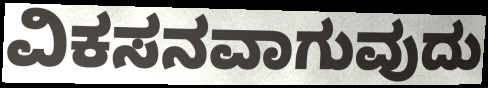
ವಿಕಸನವಾಗುವುದು